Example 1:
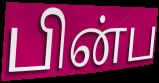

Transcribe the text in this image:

பின்ப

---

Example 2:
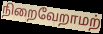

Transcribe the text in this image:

நிறைவேறாமற்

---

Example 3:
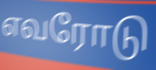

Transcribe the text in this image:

எவரோடு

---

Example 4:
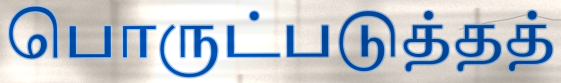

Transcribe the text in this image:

பொருட்படுத்தத்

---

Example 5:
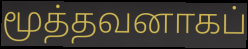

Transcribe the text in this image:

மூத்தவனாகப்